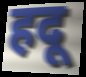
हदू